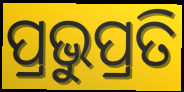
ପ୍ରଭୁପ୍ରତି